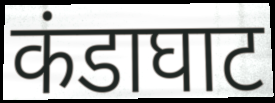
कंडाघाट